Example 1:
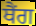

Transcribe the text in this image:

ਥੈਂਗ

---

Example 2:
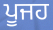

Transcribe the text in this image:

ਪੂਜਹ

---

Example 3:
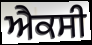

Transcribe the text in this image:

ਐਕਸੀ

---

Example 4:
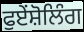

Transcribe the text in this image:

ਫੁਏਂਸ਼ੋਲਿੰਗ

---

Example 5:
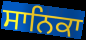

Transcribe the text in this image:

ਸਾਨਿਕਾ